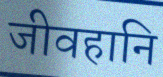
जीवहानि